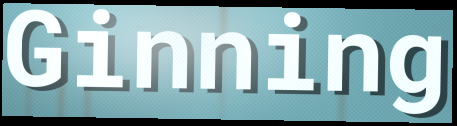
Ginning